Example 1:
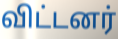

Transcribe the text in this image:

விட்டனர்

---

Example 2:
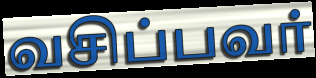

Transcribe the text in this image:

வசிப்பவர்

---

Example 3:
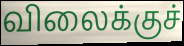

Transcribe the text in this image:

விலைக்குச்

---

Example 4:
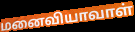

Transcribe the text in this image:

மனைவியாவாள்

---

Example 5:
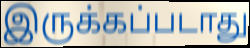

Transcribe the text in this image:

இருக்கப்படாது